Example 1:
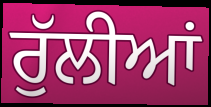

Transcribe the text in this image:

ਰੁੱਲੀਆਂ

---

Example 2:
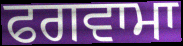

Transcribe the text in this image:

ਫਗਵਾਮਾ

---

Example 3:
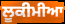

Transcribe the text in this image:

ਲੂਕੀਮੀਆ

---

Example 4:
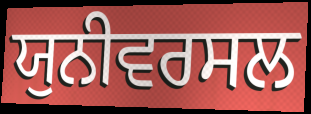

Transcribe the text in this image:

ਯੁਨੀਵਰਸਲ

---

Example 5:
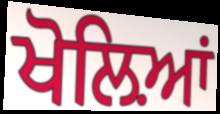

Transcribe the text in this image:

ਖੋਲ਼ਿਆਂ